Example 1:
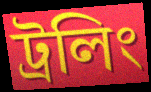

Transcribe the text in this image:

ট্রলিং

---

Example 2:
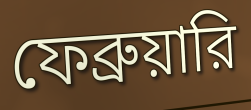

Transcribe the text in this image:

ফেব্রুয়ারি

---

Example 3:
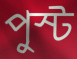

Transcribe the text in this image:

পুস্ট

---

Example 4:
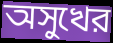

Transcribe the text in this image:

অসুখের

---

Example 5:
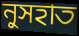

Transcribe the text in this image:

নুসহাত